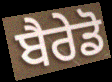
ਬੈਰੇਡੋ